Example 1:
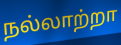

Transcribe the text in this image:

நல்லாற்றா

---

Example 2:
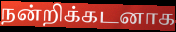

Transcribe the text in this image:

நன்றிக்கடனாக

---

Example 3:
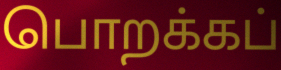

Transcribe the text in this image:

பொறக்கப்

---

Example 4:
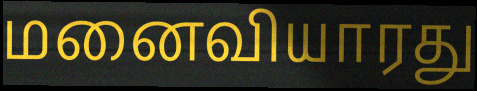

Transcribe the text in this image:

மனைவியாரது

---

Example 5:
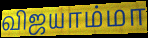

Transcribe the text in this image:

விஜயாம்மா